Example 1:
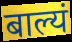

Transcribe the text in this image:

बाल्यं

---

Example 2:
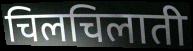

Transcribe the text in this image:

चिलचिलाती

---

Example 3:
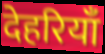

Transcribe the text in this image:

देहरियाँ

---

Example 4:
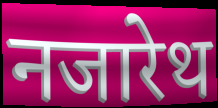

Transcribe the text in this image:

नजारेथ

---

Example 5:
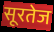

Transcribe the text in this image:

सूरतेज